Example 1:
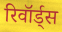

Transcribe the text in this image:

रिवॉर्ड्स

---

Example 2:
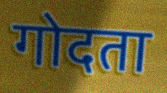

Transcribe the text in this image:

गोदता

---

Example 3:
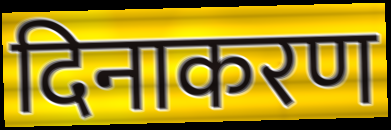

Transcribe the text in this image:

दिनाकरण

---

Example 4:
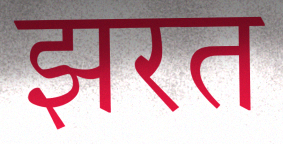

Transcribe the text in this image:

झरत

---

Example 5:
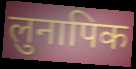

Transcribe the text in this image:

लुनापिक